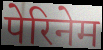
पेरिनेम